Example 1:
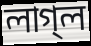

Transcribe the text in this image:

লাগ্‌ল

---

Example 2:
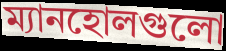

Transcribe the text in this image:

ম্যানহোলগুলো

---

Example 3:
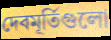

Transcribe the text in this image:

দেবমূর্তিগুলো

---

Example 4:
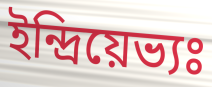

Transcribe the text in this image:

ইন্দ্রিয়েভ্যঃ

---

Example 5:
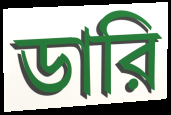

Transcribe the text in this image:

ডারি